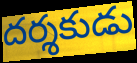
దర్శకుడు